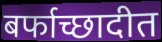
बर्फाच्छादीत